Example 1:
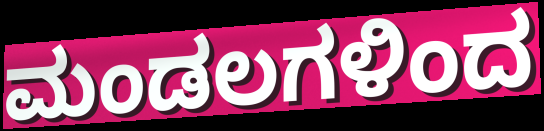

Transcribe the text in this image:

ಮಂಡಲಗಳಿಂದ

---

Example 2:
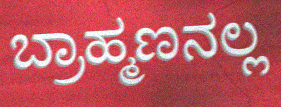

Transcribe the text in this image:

ಬ್ರಾಹ್ಮಣನಲ್ಲ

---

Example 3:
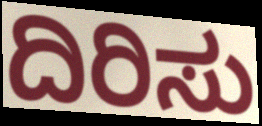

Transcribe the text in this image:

ದಿರಿಸು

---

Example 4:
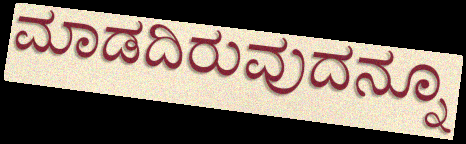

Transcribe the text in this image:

ಮಾಡದಿರುವುದನ್ನೂ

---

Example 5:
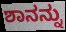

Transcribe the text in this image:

ಶಾನನ್ನು